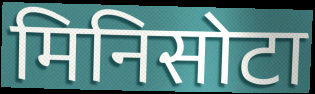
मिनिसोटा